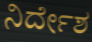
ನಿರ್ದೇಶ